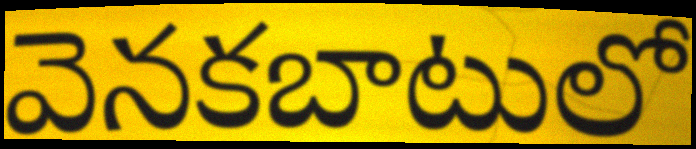
వెనకబాటులో